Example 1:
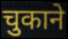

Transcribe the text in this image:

चुकाने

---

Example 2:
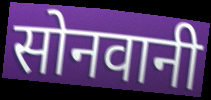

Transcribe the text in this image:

सोनवानी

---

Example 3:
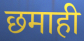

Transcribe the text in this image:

छमाही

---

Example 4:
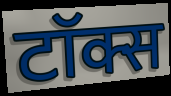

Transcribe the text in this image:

टॉक्स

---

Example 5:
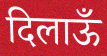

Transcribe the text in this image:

दिलाऊँ